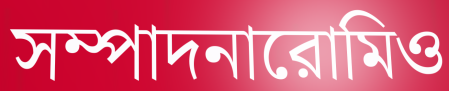
সম্পাদনারোমিও